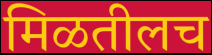
मिळतीलच